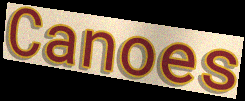
Canoes